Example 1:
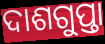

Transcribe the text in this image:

ଦାଶଗୁପ୍ତା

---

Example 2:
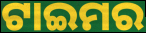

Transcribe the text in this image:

ଟାଇମର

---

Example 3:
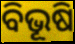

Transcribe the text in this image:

ବିଭୂଷି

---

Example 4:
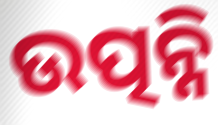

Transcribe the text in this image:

ଉତ୍ପନ୍ନି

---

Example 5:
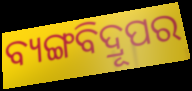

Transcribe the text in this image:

ବ୍ୟଙ୍ଗବିଦ୍ରୂପର